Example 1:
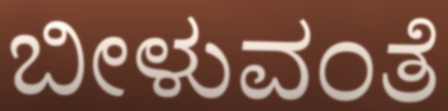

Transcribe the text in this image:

ಬೀಳುವಂತೆ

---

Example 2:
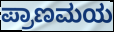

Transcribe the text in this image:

ಪ್ರಾಣಮಯ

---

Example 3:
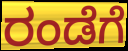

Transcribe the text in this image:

ರಂಡೆಗೆ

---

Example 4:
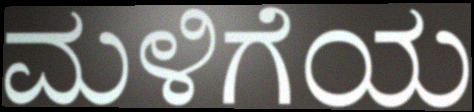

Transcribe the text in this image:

ಮಳಿಗೆಯ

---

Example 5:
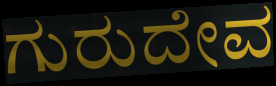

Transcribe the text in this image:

ಗುರುದೇವ